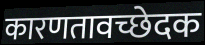
कारणतावच्छेदक